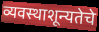
व्यवस्थाशून्यतेचे